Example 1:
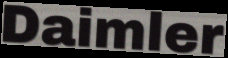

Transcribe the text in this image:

Daimler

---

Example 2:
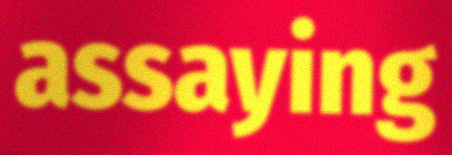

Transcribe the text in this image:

assaying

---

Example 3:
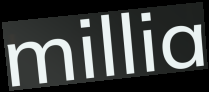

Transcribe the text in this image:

millia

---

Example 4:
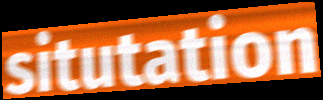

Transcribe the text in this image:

situtation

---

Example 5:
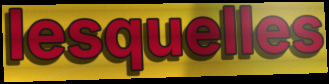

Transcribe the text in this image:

lesquelles